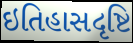
ઇતિહાસદૃષ્ટિ